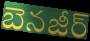
బెనజీర్